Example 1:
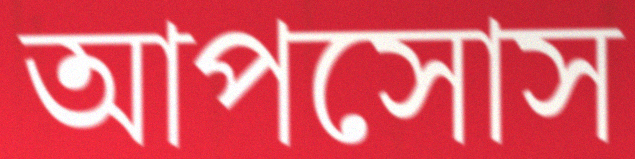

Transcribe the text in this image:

আপসোস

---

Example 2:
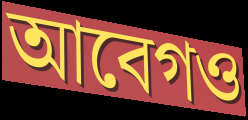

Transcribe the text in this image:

আবেগও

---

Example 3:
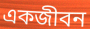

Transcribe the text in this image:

একজীবন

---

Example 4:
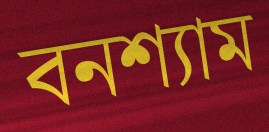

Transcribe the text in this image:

বনশ্যাম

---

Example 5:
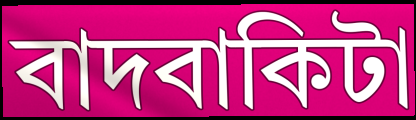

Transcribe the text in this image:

বাদবাকিটা